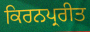
ਕਿਰਨਪ੍ਰਰੀਤ